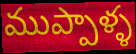
ముప్పాళ్ళ